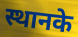
स्थानके